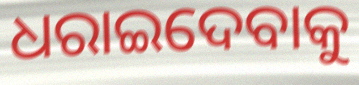
ଧରାଇଦେବାକୁ